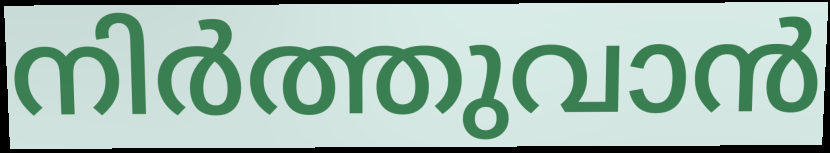
നിർത്തുവാൻ